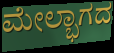
ಮೇಲ್ಭಾಗದ